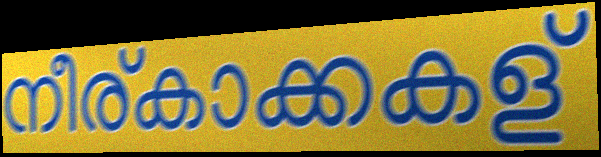
നീര്കാക്കകള്